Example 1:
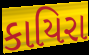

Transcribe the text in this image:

કાયિરા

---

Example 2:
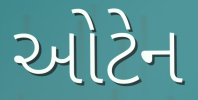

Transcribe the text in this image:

ઓટેન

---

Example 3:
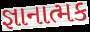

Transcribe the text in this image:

જ્ઞાનાત્મક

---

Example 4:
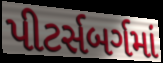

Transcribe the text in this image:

પીટર્સબર્ગમાં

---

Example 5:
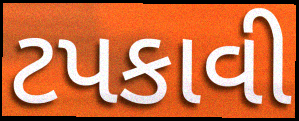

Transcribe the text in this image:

ટપકાવી